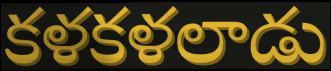
కళకళలాడు